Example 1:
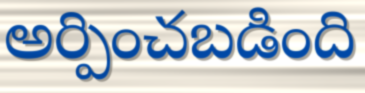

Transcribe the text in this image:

అర్పించబడింది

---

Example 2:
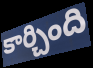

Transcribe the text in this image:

కార్చింది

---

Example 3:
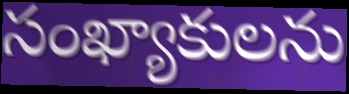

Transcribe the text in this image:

సంఖ్యాకులను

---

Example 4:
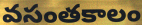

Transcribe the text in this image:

వసంతకాలం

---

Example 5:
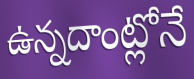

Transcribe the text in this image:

ఉన్నదాంట్లోనే